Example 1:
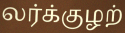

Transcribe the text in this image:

லர்க்குழற்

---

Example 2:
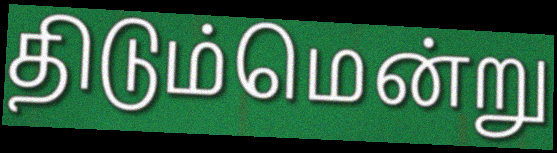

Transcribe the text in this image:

திடும்மென்று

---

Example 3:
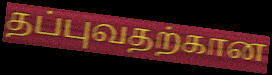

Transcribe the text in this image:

தப்புவதற்கான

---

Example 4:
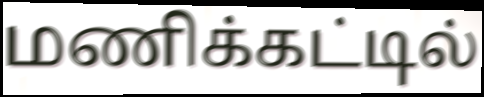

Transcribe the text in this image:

மணிக்கட்டில்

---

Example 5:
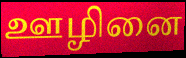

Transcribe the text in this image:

ஊழினை